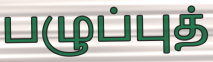
பழுப்புத்